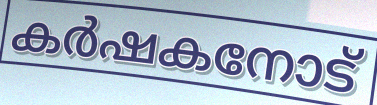
കർഷകനോട്